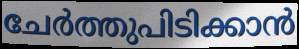
ചേർത്തുപിടിക്കാൻ